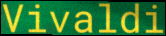
Vivaldi